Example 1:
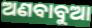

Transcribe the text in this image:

ଅଣବାବୁଆ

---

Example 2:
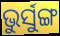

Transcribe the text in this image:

ଭୁର୍ସୁଙ୍ଗ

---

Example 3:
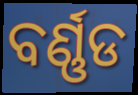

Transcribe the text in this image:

ବର୍ଣ୍ଣଡ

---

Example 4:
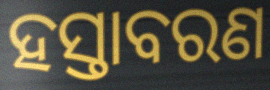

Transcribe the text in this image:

ହସ୍ତାବରଣ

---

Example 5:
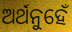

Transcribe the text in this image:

ଅର୍ଥନୁହେଁ